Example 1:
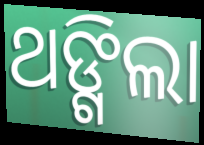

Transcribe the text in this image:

ଥଙ୍ଗିଲା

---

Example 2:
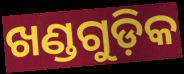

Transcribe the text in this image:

ଖଣ୍ଡଗୁଡ଼ିକ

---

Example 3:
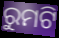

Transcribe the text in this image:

ରୁମଟି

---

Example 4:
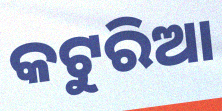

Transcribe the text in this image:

କଟୁରିଆ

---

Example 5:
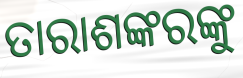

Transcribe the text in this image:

ତାରାଶଙ୍କରଙ୍କୁ